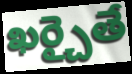
ఖర్చైతే